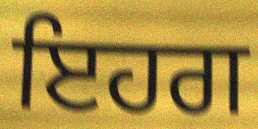
ਇਹਗ